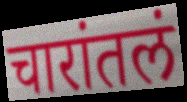
चारांतलं